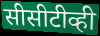
सीसीटीव्ही